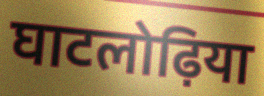
घाटलोढ़िया